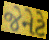
જેનેટે